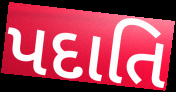
પદાતિ